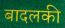
बादलकी